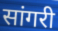
सांगरी